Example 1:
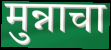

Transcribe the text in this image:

मुन्नाचा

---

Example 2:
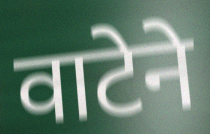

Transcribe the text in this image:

वाटेने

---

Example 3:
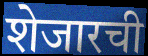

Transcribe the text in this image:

शेजारची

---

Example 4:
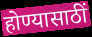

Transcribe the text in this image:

होण्यासाठीं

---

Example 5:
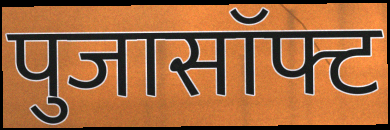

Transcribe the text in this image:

पुजासॉफ्ट